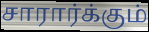
சாரார்க்கும்